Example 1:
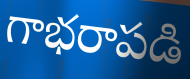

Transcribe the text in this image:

గాభరాపడి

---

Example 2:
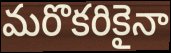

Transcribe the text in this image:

మరొకరికైనా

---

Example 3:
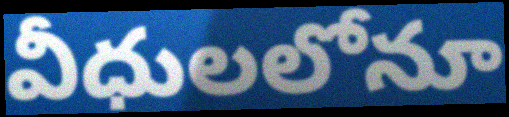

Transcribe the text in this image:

వీధులలోనూ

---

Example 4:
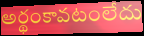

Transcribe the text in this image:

అర్థంకావటంలేదు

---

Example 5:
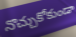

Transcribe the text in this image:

నొచ్చుకోకుండా